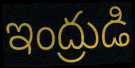
ఇంద్రుడి